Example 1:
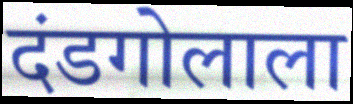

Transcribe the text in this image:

दंडगोलाला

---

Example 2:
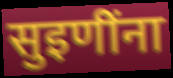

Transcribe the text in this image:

सुइणींना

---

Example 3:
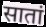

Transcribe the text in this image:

सातां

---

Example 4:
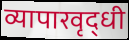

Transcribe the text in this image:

व्यापारवृद्धी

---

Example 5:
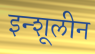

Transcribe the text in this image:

इन्शूलीन